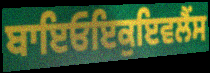
ਬਾਇਓਇਕੁਇਵਲੈਂਸ